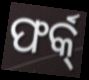
ଫର୍କ୍